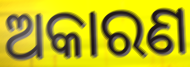
ଅକାରଣ